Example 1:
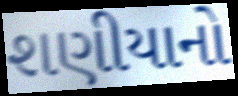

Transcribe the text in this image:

શણીયાનો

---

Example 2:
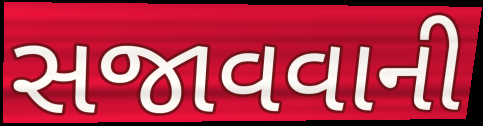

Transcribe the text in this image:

સજાવવાની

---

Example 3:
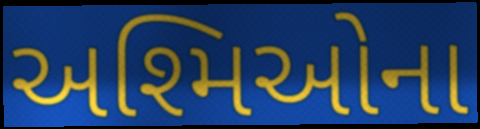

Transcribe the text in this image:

અશ્મિઓના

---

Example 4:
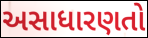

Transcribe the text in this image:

અસાધારણતો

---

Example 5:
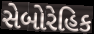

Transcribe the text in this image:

સેબોરેહિક